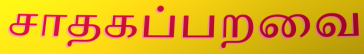
சாதகப்பறவை